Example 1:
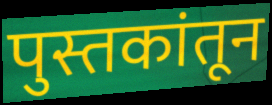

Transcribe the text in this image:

पुस्तकांतून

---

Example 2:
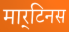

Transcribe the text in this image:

मार्टिनस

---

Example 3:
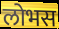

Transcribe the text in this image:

लोभस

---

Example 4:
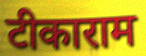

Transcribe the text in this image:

टीकाराम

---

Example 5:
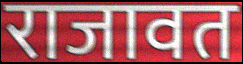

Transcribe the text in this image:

राजावत